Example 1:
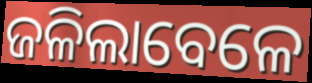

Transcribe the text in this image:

ଜଳିଲାବେଳେ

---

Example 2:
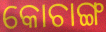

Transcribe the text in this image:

କୋଚାଙ୍ଗ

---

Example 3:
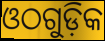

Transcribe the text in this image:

ଓଠଗୁଡ଼ିକ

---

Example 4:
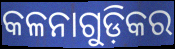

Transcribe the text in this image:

କଳନାଗୁଡ଼ିକର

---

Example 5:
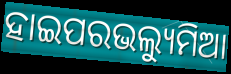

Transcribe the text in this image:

ହାଇପରଭଲ୍ୟୁମିଆ